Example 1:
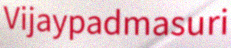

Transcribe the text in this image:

Vijaypadmasuri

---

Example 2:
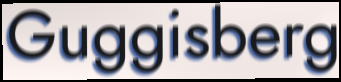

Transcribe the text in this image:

Guggisberg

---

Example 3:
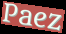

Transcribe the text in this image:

Paez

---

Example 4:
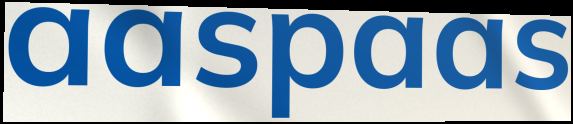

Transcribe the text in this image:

aaspaas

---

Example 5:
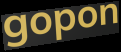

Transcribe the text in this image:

gopon